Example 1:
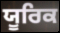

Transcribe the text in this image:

ਯੂਰਿਕ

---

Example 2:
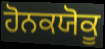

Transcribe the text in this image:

ਹੋਨਕਯੋਕੂ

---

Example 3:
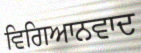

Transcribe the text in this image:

ਵਿਗਿਆਨਵਾਦ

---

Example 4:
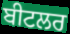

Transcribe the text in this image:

ਬੀਟਲਰ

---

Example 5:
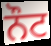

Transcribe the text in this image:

ਨੌਟ